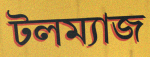
টলম্যাজ